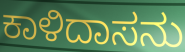
ಕಾಳಿದಾಸನು